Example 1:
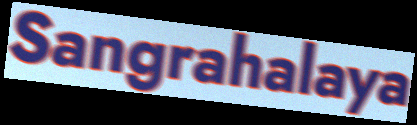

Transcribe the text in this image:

Sangrahalaya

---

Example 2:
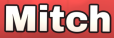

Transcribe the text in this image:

Mitch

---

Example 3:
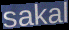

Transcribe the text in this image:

sakal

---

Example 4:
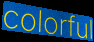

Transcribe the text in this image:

colorful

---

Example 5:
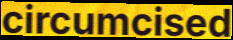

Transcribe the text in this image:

circumcised